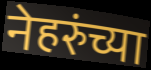
नेहरुंच्या